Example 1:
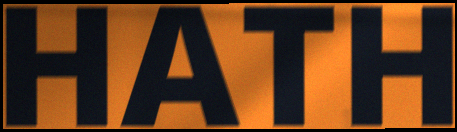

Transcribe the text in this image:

HATH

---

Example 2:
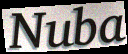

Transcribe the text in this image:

Nuba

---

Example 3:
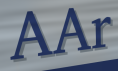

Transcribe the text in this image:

AAr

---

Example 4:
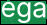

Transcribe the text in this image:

ega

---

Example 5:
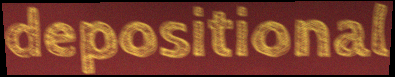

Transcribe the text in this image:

depositional